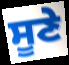
ਸੂਣੇ